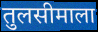
तुलसीमाला